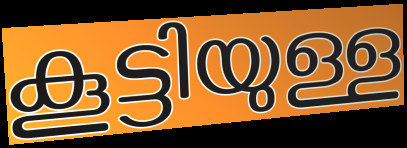
കൂട്ടിയുള്ള